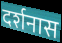
दर्शनास